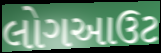
લોગઆઉટ